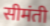
सीमंती